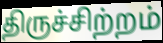
திருச்சிற்றம்